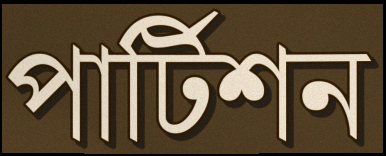
পার্টিশন